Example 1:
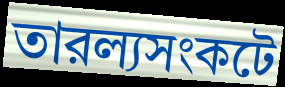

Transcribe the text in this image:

তারল্যসংকটে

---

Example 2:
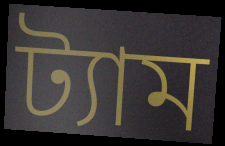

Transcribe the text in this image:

ট্যাম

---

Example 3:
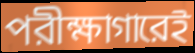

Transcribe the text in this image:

পরীক্ষাগারেই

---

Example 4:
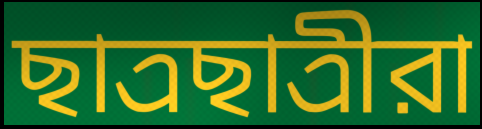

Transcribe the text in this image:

ছাত্রছাত্রীরা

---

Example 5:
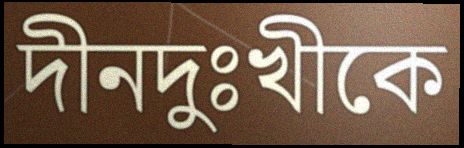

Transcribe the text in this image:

দীনদুঃখীকে